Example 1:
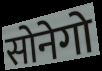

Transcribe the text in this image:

सोनेगो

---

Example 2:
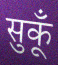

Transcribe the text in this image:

सुकूँ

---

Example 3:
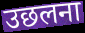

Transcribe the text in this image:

उछलना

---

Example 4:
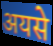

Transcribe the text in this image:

अयसे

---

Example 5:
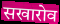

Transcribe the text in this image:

सखारोव